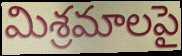
మిశ్రమాలపై